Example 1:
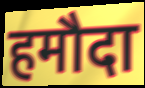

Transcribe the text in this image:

हमौदा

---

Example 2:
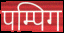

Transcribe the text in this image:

पम्पिग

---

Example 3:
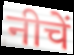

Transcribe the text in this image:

नीचें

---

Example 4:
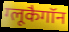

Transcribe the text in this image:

ग्लूकैगॉन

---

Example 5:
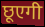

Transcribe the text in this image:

छूएगी